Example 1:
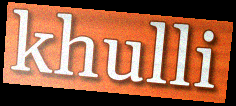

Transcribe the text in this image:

khulli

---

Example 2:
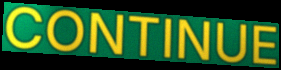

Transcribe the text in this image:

CONTINUE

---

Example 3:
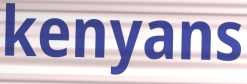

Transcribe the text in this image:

kenyans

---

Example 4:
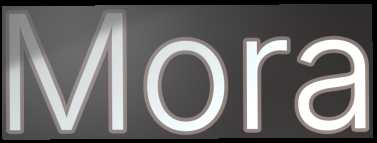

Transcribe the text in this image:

Mora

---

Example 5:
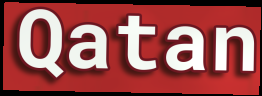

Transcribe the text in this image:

Qatan